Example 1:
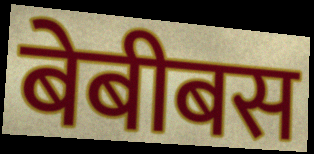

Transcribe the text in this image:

बेबीबस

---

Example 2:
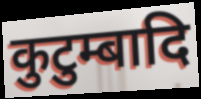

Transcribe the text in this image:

कुटुम्बादि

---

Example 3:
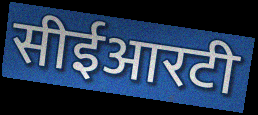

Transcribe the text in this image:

सीईआरटी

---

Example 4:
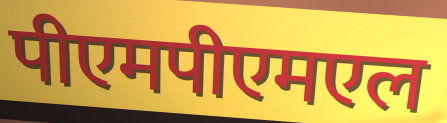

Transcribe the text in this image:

पीएमपीएमएल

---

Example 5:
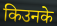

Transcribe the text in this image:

किउनके